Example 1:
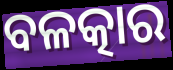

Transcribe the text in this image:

ବଳତ୍କାର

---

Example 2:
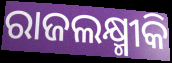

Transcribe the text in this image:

ରାଜଲକ୍ଷ୍ମୀକି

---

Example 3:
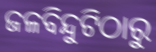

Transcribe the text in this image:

ଜଳବିନ୍ଦୁଟିଠାରୁ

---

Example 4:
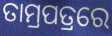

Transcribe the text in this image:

ତାମ୍ରପତ୍ରରେ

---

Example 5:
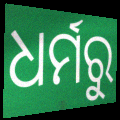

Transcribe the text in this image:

ଧର୍ମରୁ